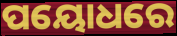
ପୟୋଧରେ